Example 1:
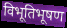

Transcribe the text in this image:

विभूतिभूषण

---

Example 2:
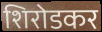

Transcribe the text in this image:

शिरोडकर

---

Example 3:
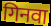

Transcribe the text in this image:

गिनवा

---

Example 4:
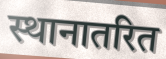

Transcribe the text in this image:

स्थानातरित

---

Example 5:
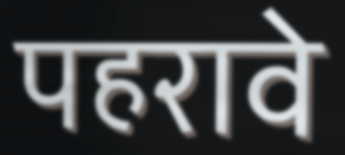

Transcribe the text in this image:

पहरावे